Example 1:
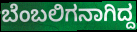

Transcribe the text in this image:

ಬೆಂಬಲಿಗನಾಗಿದ್ದ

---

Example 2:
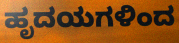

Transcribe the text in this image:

ಹೃದಯಗಳಿಂದ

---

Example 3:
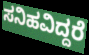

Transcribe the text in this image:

ಸನಿಹವಿದ್ದರೆ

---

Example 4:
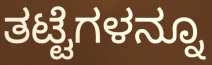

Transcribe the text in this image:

ತಟ್ಟೆಗಳನ್ನೂ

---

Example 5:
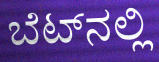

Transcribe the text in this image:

ಬೆಟ್‌ನಲ್ಲಿ